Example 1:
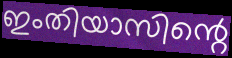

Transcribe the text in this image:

ഇംതിയാസിന്റെ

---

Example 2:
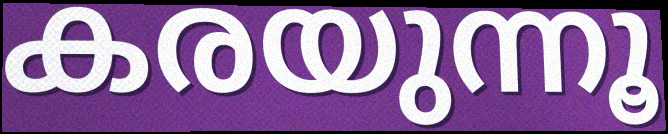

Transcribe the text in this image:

കരയുന്നൂ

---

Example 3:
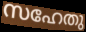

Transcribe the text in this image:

സഹേതു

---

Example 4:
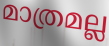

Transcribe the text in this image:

മാത്രമല്ല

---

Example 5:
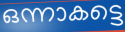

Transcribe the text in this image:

ഒന്നാകട്ടെ